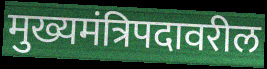
मुख्यमंत्रिपदावरील